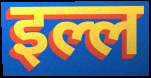
इल्ल